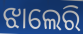
ଝାଲେରି